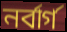
নর্বার্গ